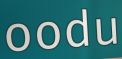
oodu